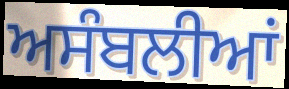
ਅਸੰਬਲੀਆਂ